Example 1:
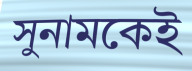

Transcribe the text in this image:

সুনামকেই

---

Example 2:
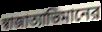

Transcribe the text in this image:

স্বাজাত্যাভিমানের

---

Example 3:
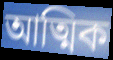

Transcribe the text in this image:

আত্মিক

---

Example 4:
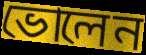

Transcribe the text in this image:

ভোলেন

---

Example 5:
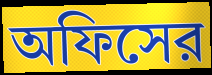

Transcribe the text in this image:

অফিসের